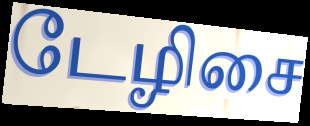
டேழிசை